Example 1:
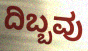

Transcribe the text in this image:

ದಿಬ್ಬವು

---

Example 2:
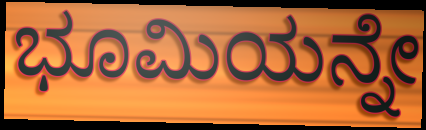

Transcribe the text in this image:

ಭೂಮಿಯನ್ನೇ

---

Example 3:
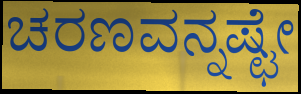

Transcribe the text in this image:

ಚರಣವನ್ನಷ್ಟೇ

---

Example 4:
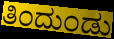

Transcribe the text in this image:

ತಿಂದುಂಡು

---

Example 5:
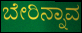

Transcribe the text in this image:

ಬೇರಿನ್ನಾವ